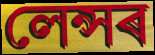
লেন্সৰ